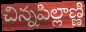
చిన్నపిల్లాణ్ణి